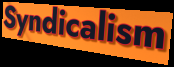
Syndicalism